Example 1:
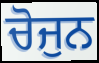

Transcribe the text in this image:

ਚੋਜੁਨ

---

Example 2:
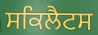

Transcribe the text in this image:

ਸਕਿਲੈਟਸ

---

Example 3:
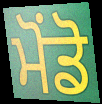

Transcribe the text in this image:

ਮੋਂਡੋ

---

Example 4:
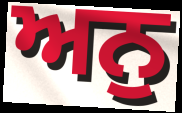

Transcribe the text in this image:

ਅਨੁ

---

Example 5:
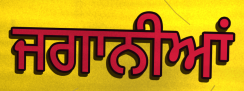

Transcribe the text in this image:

ਜਗਾਨੀਆਂ